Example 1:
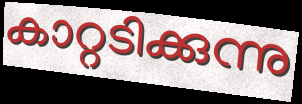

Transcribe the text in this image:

കാറ്റടിക്കുന്നു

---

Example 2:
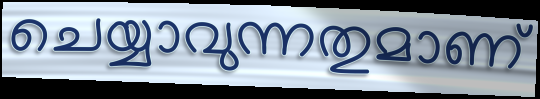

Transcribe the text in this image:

ചെയ്യാവുന്നതുമാണ്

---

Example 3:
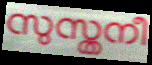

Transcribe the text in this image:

സുസ്തനീ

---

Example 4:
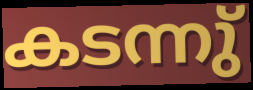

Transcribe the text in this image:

കടന്നു്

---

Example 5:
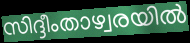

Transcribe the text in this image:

സിദ്ദീംതാഴ്വരയിൽ